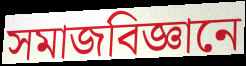
সমাজবিজ্ঞানে